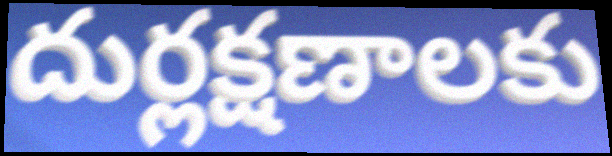
దుర్లక్షణాలకు